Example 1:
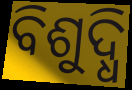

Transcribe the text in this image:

ବିଶୁଦ୍ଧି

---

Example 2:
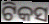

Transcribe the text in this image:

ଟିକସ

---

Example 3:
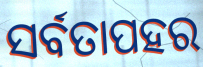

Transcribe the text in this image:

ସର୍ବତାପହର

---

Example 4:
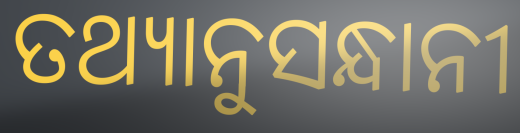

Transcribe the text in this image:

ତଥ୍ୟାନୁସନ୍ଧାନୀ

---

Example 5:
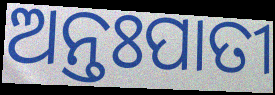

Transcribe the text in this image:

ଅନ୍ତଃପାତୀ